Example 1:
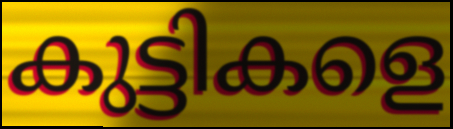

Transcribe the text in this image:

കുട്ടികളെ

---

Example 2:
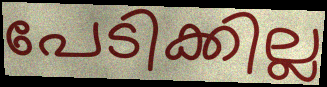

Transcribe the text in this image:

പേടിക്കില്ല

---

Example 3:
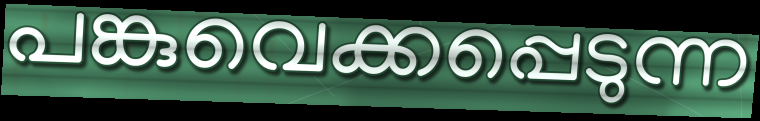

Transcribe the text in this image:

പങ്കുവെക്കപ്പെടുന്ന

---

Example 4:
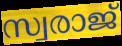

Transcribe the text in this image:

സ്വരാജ്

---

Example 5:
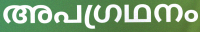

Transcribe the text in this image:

അപഗ്രഥനം